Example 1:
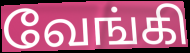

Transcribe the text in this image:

வேங்கி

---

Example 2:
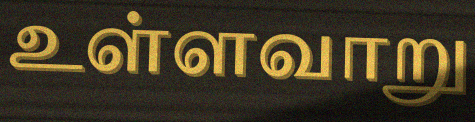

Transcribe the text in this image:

உள்ளவாறு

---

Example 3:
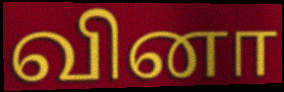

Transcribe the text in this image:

வினா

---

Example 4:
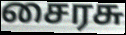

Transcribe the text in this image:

சைரசு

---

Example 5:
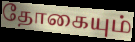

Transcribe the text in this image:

தோகையும்